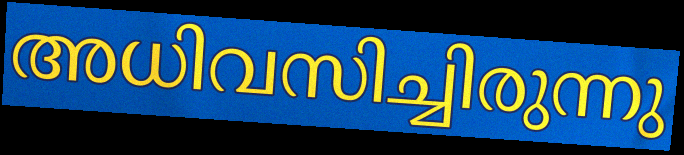
അധിവസിച്ചിരുന്നു